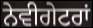
ਨੇਵੀਗੇਟਰਾਂ